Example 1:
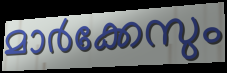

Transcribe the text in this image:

മാർക്കേസും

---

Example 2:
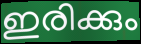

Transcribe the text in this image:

ഇരിക്കും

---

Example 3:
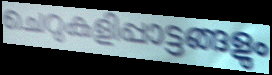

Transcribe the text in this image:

ചെറുകളിപ്പാട്ടങ്ങളും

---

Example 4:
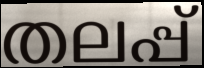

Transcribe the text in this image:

തലപ്പ്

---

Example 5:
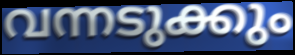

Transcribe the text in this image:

വന്നടുക്കും